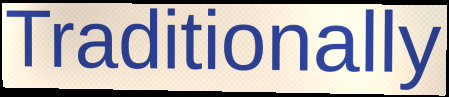
Traditionally